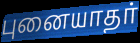
புனையாதர்